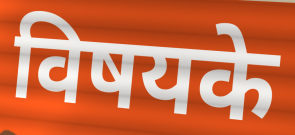
विषयके